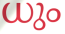
ധും